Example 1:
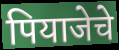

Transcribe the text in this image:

पियाजेचे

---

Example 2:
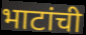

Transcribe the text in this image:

भाटांची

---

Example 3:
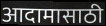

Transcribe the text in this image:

आदामासाठी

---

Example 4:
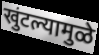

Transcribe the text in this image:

खुंटल्यामुळे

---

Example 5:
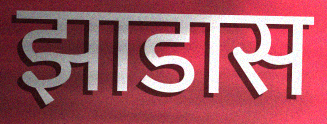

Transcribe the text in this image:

झाडास